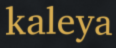
kaleya